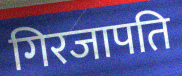
गिरजापति